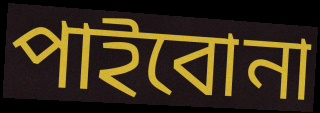
পাইবোনা